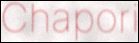
Chapori